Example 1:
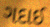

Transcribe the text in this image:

ગદાઈ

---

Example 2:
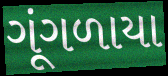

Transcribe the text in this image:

ગૂંગળાયા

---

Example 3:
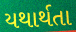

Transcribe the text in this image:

યથાર્થતા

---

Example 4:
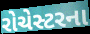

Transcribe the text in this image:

રોચેસ્ટરના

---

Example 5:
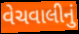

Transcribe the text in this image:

વેચવાલીનું